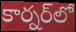
కార్నర్‌లో